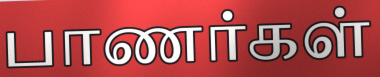
பாணர்கள்